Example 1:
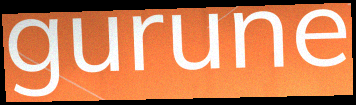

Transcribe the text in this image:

gurune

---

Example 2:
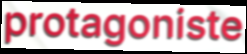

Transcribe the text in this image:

protagoniste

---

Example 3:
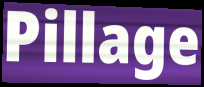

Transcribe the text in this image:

Pillage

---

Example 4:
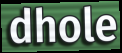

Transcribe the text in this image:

dhole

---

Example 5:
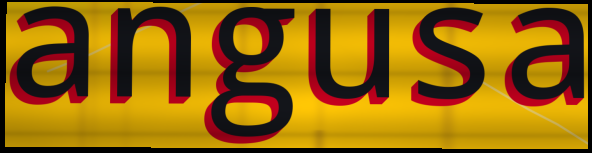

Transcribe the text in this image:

angusa